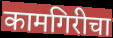
कामगिरीचा